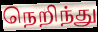
நெறிந்து